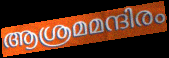
ആശ്രമമന്ദിരം